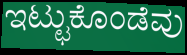
ಇಟ್ಟುಕೊಂಡೆವು